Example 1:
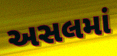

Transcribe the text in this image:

અસલમાં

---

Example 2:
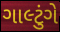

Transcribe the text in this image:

ગાલ્ટુંગે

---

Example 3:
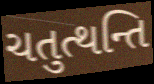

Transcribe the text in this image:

ચતુત્થન્તિ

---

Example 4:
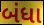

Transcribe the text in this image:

બંધા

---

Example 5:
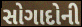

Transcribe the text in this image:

સોગાદોની